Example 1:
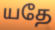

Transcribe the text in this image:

யதே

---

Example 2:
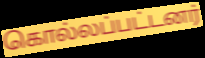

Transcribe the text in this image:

கொல்லப்பட்டனர்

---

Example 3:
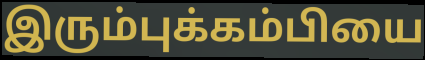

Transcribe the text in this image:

இரும்புக்கம்பியை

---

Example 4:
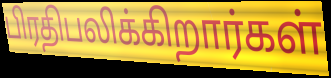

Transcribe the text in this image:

பிரதிபலிக்கிறார்கள்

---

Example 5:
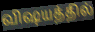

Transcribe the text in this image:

விஷயத்தில்